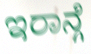
ಇರಾನ್ಗೆ